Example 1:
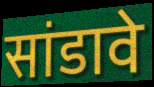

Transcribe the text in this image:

सांडावे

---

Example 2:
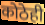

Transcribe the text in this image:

कोठेही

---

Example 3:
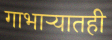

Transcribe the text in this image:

गाभाऱ्यातही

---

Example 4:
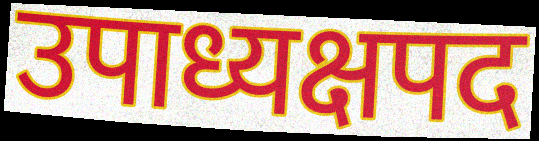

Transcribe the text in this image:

उपाध्यक्षपद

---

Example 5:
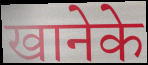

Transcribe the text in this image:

खानेके